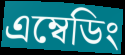
এম্বেডিং